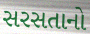
સરસતાનો